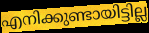
എനിക്കുണ്ടായിട്ടില്ല